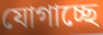
যোগাচ্ছে